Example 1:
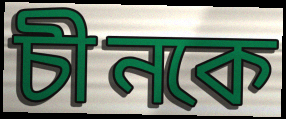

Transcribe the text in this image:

চীনকে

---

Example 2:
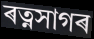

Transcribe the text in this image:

ৰত্নসাগৰ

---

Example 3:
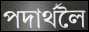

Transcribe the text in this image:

পদাৰ্থলৈ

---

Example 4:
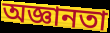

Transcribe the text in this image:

অজ্ঞানতা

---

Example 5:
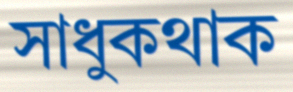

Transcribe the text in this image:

সাধুকথাক